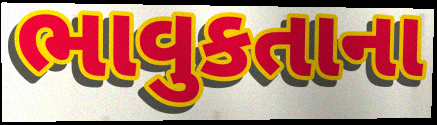
ભાવુકતાના